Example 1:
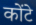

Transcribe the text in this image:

कोंटे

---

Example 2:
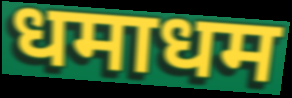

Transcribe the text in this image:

धमाधम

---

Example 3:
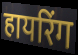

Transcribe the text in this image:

हायरिंग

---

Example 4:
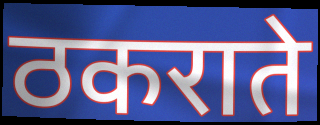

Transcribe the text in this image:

ठकराते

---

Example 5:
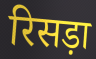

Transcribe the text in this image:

रिसड़ा